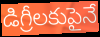
డిగ్రీలకుపైనే